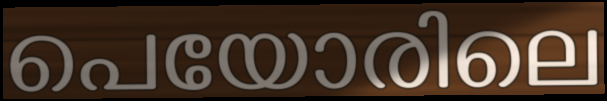
പെയോരിലെ